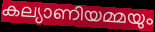
കല്യാണിയമ്മയും